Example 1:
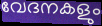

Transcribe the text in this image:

വേദനകളും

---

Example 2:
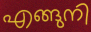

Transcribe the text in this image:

എങ്ങുനി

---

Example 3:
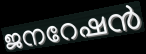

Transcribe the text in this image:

ജനറേഷൻ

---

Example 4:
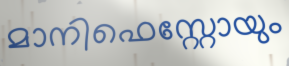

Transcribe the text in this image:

മാനിഫെസ്റ്റോയും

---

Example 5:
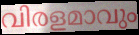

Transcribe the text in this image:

വിരളമാവും